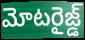
మోటరైజ్డ్